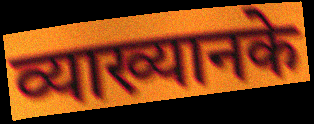
व्याख्यानके